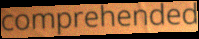
comprehended